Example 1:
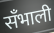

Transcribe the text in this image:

सँभाली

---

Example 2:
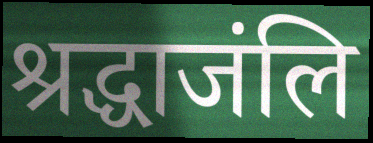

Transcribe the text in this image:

श्रद्धाजंलि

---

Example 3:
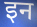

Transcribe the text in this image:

इन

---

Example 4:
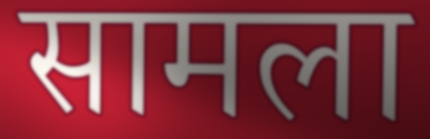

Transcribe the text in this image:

सामला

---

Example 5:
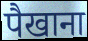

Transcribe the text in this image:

पैखाना